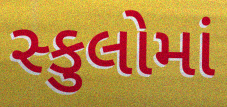
સ્કુલોમાં